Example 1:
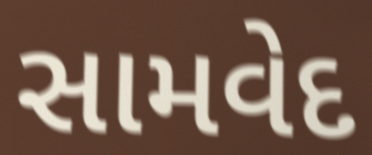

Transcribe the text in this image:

સામવેદ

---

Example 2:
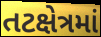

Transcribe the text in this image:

તટક્ષેત્રમાં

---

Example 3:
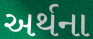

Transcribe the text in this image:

અર્થના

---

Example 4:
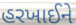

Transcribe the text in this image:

હરખાઈને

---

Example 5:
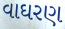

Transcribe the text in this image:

વાઘરણ